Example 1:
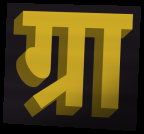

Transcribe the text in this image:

ग्रा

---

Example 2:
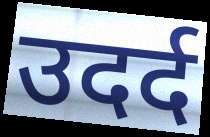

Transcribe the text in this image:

उदर्द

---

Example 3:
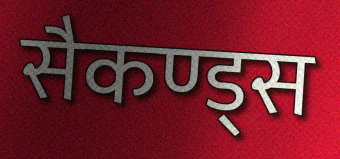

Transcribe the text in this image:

सैकण्ड्स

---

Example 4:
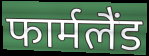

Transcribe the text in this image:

फार्मलैंड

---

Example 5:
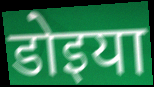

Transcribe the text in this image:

डोइया